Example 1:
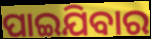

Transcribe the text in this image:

ପାଇଯିବାର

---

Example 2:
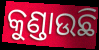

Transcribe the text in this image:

କୁଣ୍ଡାଉଛି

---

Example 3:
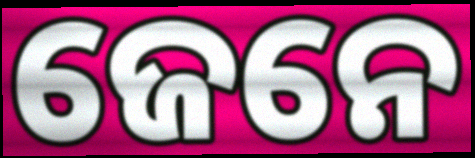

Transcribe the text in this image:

ଜେନେ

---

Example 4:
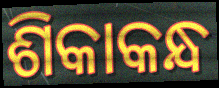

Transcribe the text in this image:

ଶିକାକନ୍ଧ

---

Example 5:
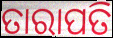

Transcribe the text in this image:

ତାରାପତି